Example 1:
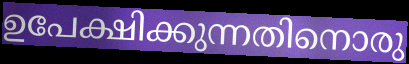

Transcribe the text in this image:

ഉപേക്ഷിക്കുന്നതിനൊരു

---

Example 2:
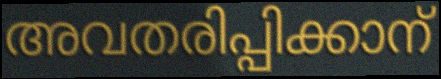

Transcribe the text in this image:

അവതരിപ്പിക്കാന്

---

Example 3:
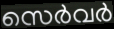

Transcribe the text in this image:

സെർവർ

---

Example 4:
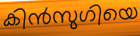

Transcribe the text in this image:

കിൻസുഗിയെ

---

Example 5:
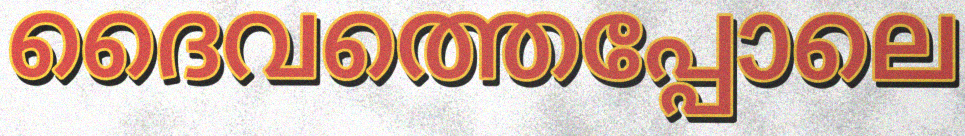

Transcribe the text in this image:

ദൈവത്തെപ്പോലെ